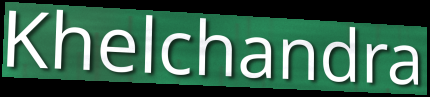
Khelchandra